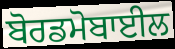
ਬੋਰਡਮੋਬਾਈਲ